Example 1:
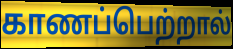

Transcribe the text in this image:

காணப்பெற்றால்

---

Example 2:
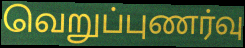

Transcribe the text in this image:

வெறுப்புணர்வு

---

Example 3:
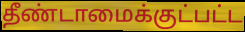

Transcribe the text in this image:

தீண்டாமைக்குட்பட்ட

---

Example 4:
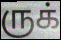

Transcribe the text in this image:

ருக்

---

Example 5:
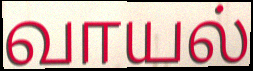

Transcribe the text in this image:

வாயல்